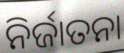
ନିର୍ଜାତନା